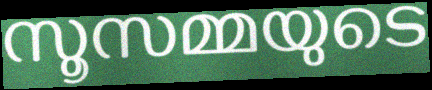
സൂസമ്മയുടെ